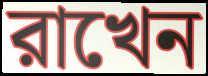
রাখেন